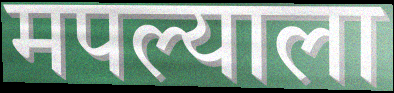
मपल्याला